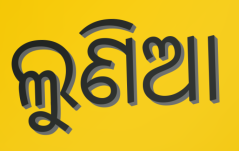
ଲୁଣିଆ